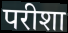
परीशा